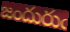
జందురుఁ